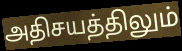
அதிசயத்திலும்